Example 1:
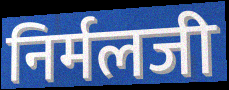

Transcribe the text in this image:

निर्मलजी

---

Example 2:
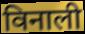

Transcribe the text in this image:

विनाली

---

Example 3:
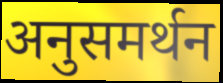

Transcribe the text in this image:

अनुसमर्थन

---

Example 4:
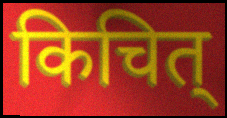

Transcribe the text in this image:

किचित्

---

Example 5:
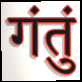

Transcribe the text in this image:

गंतुं